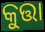
କୁତ୍ତା